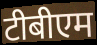
टीबीएम